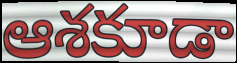
ఆశకూడా